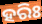
ହରିଃ